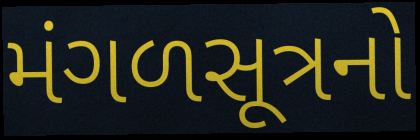
મંગળસૂત્રનો